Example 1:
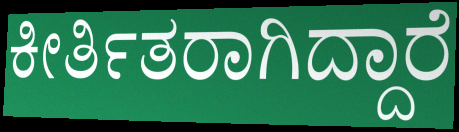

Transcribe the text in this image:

ಕೀರ್ತಿತರಾಗಿದ್ದಾರೆ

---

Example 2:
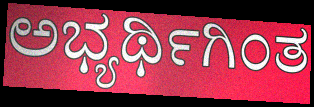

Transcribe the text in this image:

ಅಭ್ಯರ್ಥಿಗಿಂತ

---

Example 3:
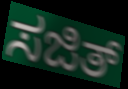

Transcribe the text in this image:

ಸಜಿತ್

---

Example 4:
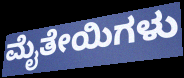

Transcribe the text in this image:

ಮೈತೇಯಿಗಳು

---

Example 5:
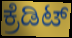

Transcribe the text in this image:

ಕ್ರೆಡಿಟ್